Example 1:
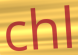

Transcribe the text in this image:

chl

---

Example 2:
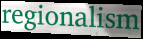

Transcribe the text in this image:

regionalism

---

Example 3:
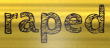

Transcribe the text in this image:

raped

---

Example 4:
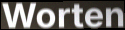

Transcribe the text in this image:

Worten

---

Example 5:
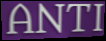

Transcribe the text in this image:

ANTI